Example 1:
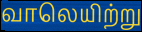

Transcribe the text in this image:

வாலெயிற்று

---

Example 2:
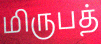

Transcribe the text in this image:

மிருபத்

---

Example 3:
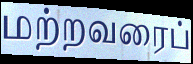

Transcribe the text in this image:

மற்றவரைப்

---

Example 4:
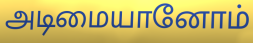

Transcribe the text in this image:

அடிமையானோம்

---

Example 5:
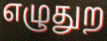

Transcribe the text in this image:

எழுதுற